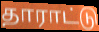
தாராட்டு